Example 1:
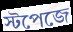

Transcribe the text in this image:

স্টপেজে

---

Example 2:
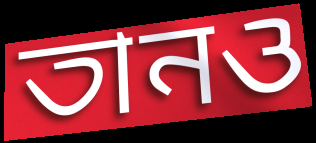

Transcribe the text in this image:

তানও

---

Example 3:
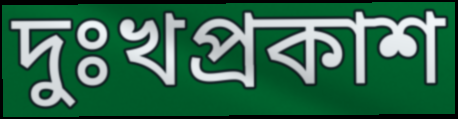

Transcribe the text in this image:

দুঃখপ্রকাশ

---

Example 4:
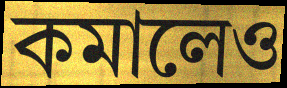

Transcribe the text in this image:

কমালেও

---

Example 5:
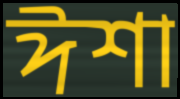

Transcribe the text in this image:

ঈশা